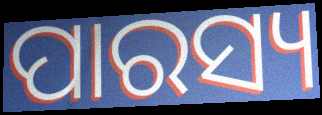
ପାରସ୍ୟ